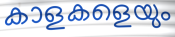
കാളകളെയും